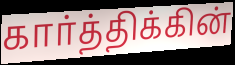
கார்த்திக்கின்